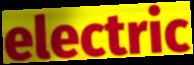
electric